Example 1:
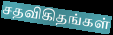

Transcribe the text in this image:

சதவிகிதங்கள்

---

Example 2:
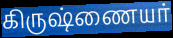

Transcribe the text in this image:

கிருஷ்ணையர்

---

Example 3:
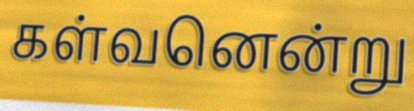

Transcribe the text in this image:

கள்வனென்று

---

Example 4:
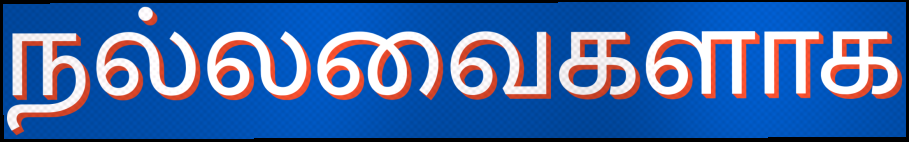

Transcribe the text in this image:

நல்லவைகளாக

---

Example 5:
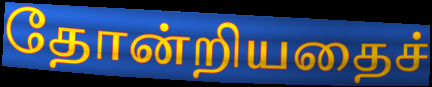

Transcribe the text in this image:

தோன்றியதைச்